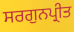
ਸਰਗੁਨਪ੍ਰੀਤ